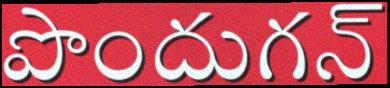
పొందుగన్